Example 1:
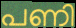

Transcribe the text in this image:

പണി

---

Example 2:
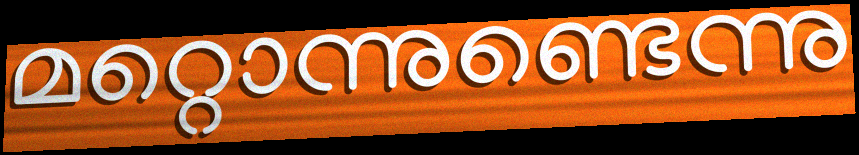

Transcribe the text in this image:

മറ്റൊന്നുണ്ടെന്നു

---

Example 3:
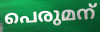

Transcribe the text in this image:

പെരുമന്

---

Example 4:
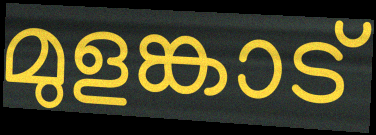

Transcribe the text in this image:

മുളങ്കാട്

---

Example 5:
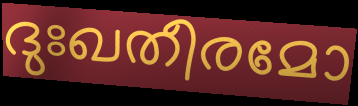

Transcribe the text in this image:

ദുഃഖതീരമോ